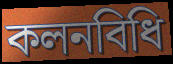
কলনবিধি